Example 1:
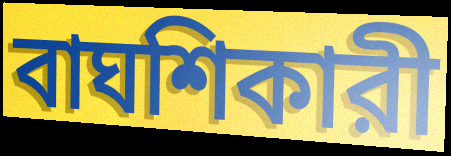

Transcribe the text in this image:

বাঘশিকারী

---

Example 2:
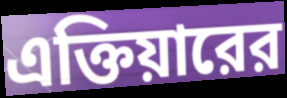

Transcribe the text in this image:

এক্তিয়ারের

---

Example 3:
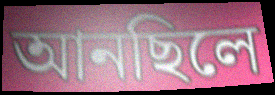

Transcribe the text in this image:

আনছিলে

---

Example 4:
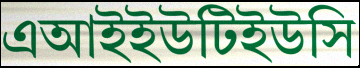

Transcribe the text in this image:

এআইইউটিইউসি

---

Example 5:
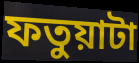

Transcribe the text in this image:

ফতুয়াটা